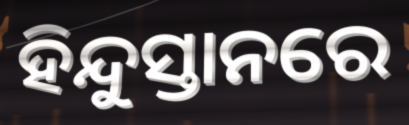
ହିନ୍ଦୁସ୍ତାନରେ